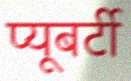
प्यूबर्टी